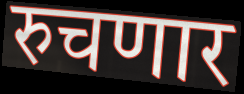
रुचणार